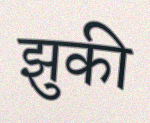
झुकी